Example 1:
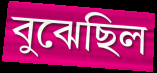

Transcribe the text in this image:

বুঝেছিল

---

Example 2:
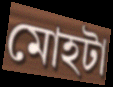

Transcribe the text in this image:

মোহটা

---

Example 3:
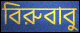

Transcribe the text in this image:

বিরুবাবু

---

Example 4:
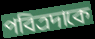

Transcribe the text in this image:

পবিত্রদাকে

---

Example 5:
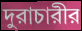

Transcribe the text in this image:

দুরাচারীর